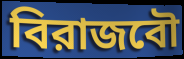
বিরাজবৌ